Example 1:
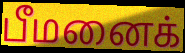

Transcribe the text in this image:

பீமனைக்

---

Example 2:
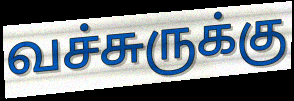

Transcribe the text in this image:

வச்சுருக்கு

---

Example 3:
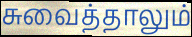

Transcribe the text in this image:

சுவைத்தாலும்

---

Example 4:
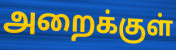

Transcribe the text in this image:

அறைக்குள்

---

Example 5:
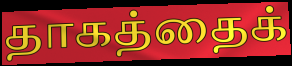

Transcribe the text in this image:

தாகத்தைக்